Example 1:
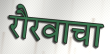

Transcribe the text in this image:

रौरवाचा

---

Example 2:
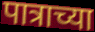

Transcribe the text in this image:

पात्राच्‍या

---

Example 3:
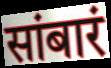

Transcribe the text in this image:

सांबारं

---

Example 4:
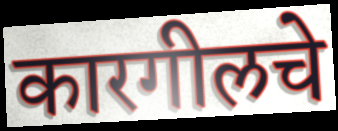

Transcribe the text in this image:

कारगीलचे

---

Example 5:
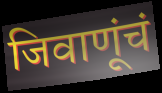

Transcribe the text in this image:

जिवाणूंचं